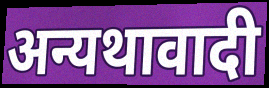
अन्यथावादी